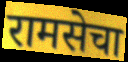
रामसेचा